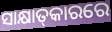
ସାକ୍ଷାତ୍‌କାରରେ